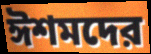
ঈশমদের